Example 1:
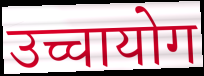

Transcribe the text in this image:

उच्चायोग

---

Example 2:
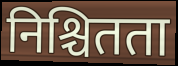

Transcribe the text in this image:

निश्चितता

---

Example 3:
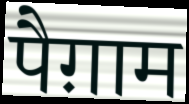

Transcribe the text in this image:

पैग़ाम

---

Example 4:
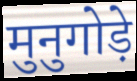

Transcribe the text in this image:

मुनुगोड़े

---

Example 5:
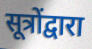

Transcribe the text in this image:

सूत्रोंद्वारा